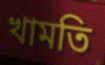
খামতি